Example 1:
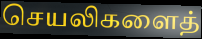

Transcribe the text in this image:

செயலிகளைத்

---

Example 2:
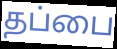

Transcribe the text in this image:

தப்பை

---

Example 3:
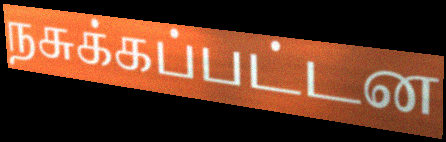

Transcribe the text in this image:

நசுக்கப்பட்டன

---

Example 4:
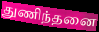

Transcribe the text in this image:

துணிந்தனை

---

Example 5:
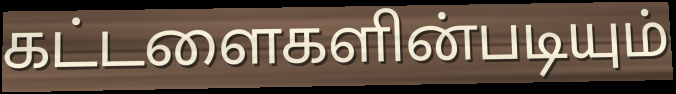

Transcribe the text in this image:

கட்டளைகளின்படியும்